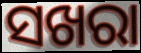
ସଖରା